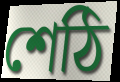
শেঠি